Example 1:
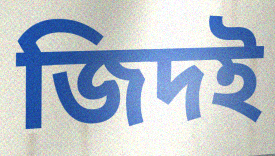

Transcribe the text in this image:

জিদই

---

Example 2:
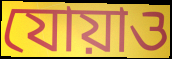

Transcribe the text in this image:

যোয়াও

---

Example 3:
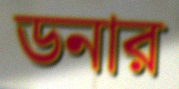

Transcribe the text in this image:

ডনার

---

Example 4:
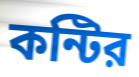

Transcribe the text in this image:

কন্টির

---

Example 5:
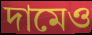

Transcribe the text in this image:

দামেও